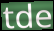
tde